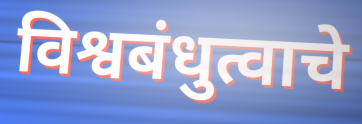
विश्वबंधुत्वाचे